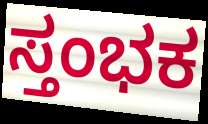
ಸ್ತಂಭಕ